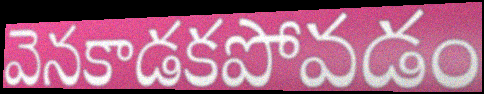
వెనకాడకపోవడం